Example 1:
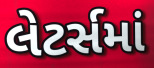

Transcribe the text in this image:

લેટર્સમાં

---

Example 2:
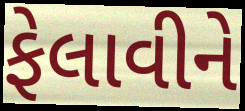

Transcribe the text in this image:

ફેલાવીને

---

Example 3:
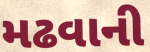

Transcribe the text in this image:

મઢવાની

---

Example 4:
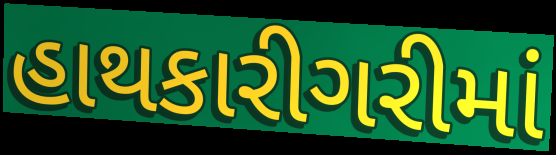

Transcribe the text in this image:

હાથકારીગરીમાં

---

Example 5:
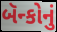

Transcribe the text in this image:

બૅન્કોનું